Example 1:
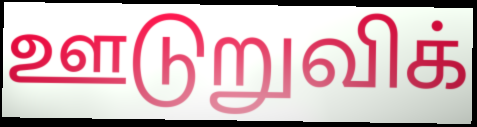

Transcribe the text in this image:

ஊடுறுவிக்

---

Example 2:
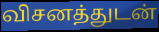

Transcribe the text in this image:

விசனத்துடன்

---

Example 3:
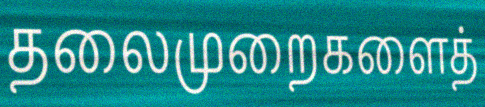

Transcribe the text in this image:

தலைமுறைகளைத்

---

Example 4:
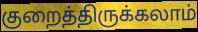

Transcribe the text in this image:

குறைத்திருக்கலாம்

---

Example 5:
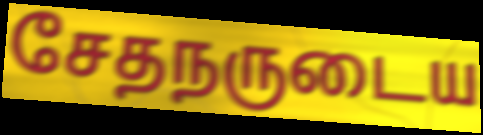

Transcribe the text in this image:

சேதநருடைய